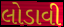
લોડાવી